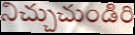
నిచ్చుచుండిరి